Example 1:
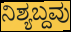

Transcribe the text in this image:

ನಿಶ್ಯಬ್ದವು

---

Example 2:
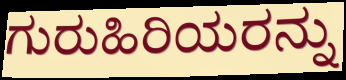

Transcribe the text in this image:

ಗುರುಹಿರಿಯರನ್ನು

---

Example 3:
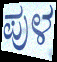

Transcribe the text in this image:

ಪುಳ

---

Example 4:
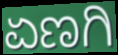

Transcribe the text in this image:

ಏಣಗಿ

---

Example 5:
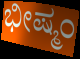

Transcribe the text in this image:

ಭೀಷ್ಮಂ